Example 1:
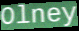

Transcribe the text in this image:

Olney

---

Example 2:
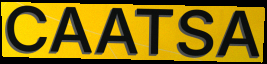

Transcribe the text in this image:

CAATSA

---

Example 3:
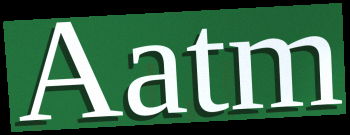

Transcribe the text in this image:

Aatm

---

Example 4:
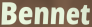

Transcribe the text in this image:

Bennet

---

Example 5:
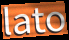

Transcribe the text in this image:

lato